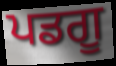
ਪਡਗੂ